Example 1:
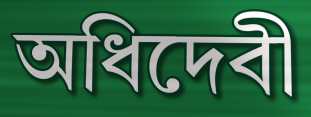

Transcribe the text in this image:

অধিদেবী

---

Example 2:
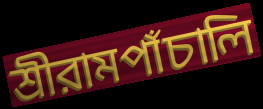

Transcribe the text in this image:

শ্রীরামপাঁচালি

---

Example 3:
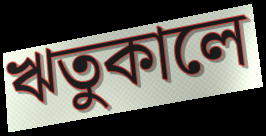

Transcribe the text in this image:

ঋতুকালে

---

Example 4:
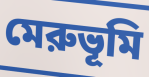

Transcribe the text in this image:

মেরুভূমি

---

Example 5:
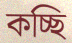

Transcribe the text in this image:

কচ্ছি